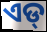
ଏଡ୍